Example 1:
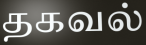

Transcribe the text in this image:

தகவல்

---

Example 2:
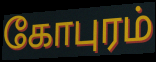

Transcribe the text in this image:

கோபுரம்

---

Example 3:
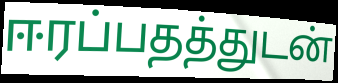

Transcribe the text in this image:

ஈரப்பதத்துடன்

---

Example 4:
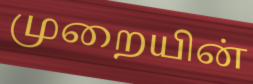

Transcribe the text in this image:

முறையின்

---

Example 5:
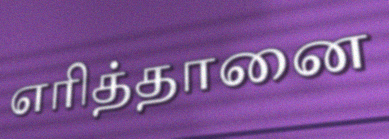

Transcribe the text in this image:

எரித்தானை